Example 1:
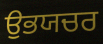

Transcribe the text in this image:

ਉਭਯਚਰ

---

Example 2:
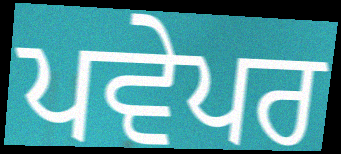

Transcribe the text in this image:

ਪਵੇਪਰ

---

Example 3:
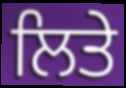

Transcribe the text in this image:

ਲਿਤੇ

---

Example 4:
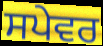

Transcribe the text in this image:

ਸਪੇਵਰ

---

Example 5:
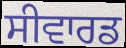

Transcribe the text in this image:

ਸੀਵਾਰਡ